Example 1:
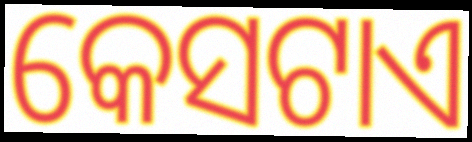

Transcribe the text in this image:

କେସଟାଏ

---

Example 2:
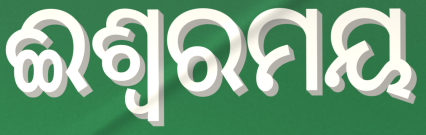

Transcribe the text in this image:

ଈଶ୍ଵରମୟ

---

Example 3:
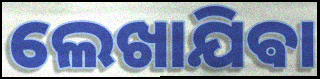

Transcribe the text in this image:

ଲେଖାଯିଵା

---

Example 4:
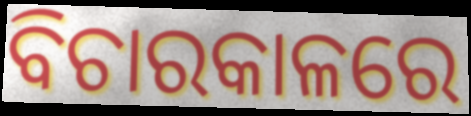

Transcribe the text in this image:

ବିଚାରକାଳରେ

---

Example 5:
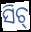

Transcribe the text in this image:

ସିଚ୍